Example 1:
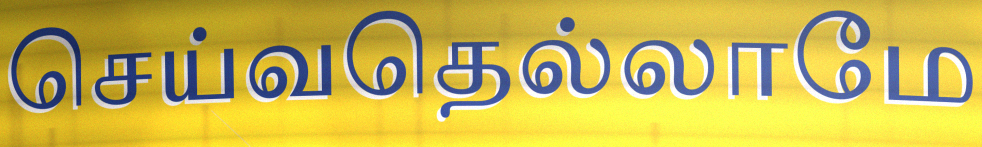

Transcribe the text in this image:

செய்வதெல்லாமே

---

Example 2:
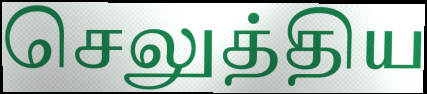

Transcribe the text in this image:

செலுத்திய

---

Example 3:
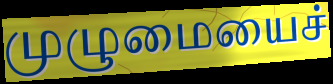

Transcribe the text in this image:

முழுமையைச்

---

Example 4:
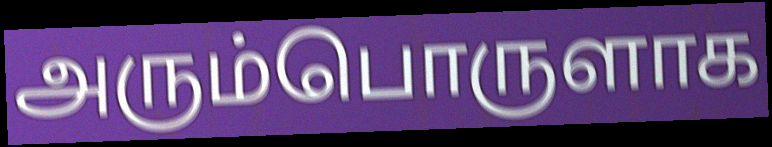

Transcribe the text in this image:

அரும்பொருளாக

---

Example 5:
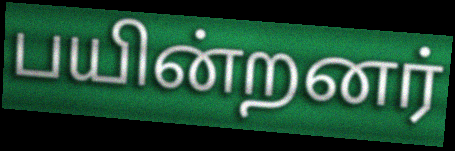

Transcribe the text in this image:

பயின்றனர்